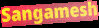
Sangamesh